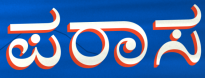
ಪರಾಸ